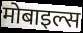
मोबाइल्स